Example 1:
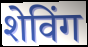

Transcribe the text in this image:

शेविंग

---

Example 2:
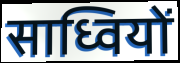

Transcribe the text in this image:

साध्वियों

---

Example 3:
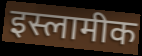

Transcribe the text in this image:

इस्लामीक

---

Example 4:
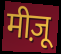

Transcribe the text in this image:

मीज़ू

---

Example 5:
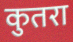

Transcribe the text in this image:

कुतरा